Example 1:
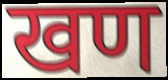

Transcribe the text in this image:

खण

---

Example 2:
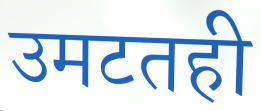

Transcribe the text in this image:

उमटतही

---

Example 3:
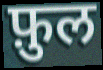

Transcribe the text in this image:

फ़ुल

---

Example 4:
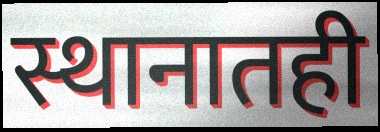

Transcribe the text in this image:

स्थानातही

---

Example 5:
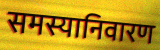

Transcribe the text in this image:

समस्यानिवारण